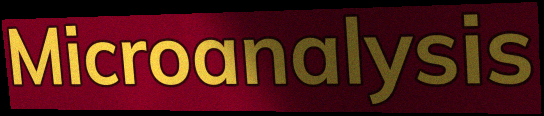
Microanalysis